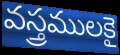
వస్త్రములకై